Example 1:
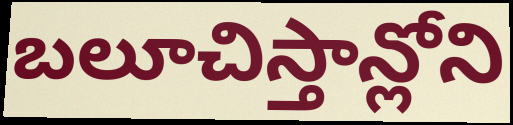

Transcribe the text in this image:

బలూచిస్తాన్లోని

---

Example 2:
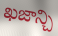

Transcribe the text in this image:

ఖజాన్చి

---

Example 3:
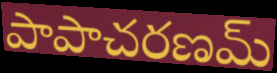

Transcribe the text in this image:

పాపాచరణమ్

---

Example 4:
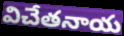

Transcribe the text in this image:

విచేతనాయ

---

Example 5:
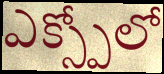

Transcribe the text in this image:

ఎక్స్పోలో